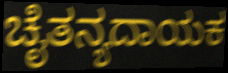
ಚೈತನ್ಯದಾಯಕ